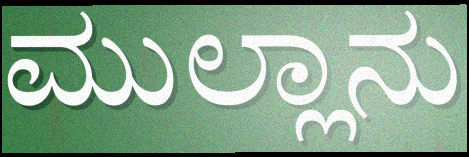
ಮುಲ್ಲಾನು